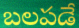
బలపడే